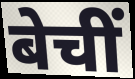
बेचीं